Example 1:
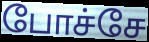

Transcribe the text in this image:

போச்சே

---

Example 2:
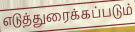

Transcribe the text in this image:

எடுத்துரைக்கப்படும்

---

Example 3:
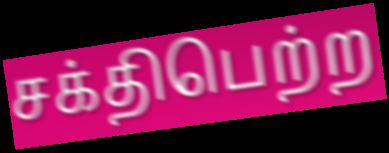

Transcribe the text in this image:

சக்திபெற்ற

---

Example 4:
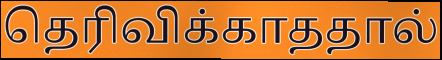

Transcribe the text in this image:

தெரிவிக்காததால்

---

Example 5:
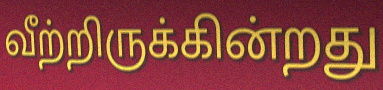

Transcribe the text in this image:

வீற்றிருக்கின்றது